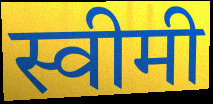
स्वीमी